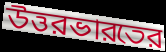
উত্তরভারতের